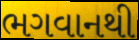
ભગવાનથી